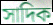
সাদিক